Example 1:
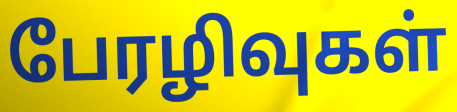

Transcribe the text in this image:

பேரழிவுகள்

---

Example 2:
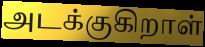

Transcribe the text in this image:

அடக்குகிறாள்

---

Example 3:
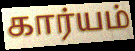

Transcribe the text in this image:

கார்யம்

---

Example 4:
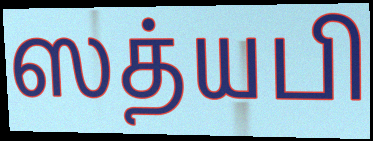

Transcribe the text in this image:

ஸத்யபி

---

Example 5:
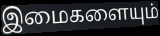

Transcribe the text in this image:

இமைகளையும்